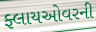
ફ્લાયઓવરની